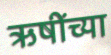
ऋषींच्या